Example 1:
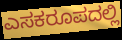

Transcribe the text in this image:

ಎಸಕರೂಪದಲ್ಲಿ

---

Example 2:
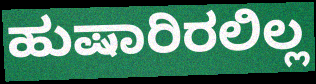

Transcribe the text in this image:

ಹುಷಾರಿರಲಿಲ್ಲ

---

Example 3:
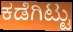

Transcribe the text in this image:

ಕಡೆಗಿಟ್ಟು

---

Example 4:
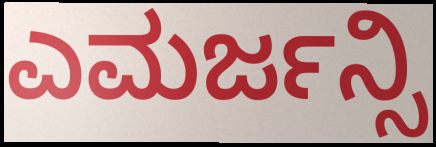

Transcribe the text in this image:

ಎಮರ್ಜನ್ಸಿ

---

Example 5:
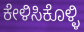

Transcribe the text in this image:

ಕೇಳಿಸಿಕೊಳ್ಳಿ